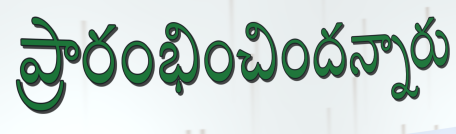
ప్రారంభించిందన్నారు